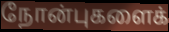
நோன்புகளைக்